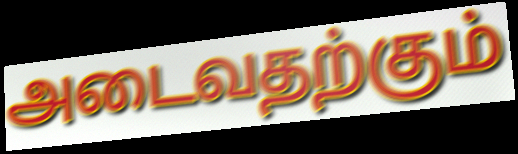
அடைவதற்கும்